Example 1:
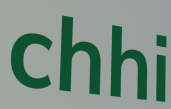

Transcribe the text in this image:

chhi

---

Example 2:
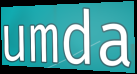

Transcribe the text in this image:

umda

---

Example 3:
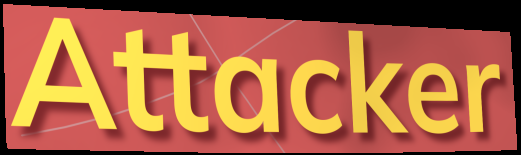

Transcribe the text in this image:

Attacker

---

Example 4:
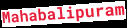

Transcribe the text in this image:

Mahabalipuram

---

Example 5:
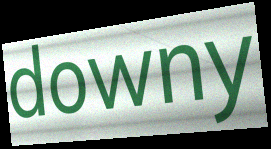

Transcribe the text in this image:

downy